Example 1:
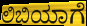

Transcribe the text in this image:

ಲಿಬಿಯಾಗೆ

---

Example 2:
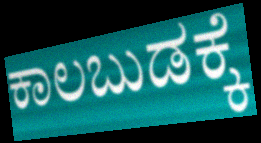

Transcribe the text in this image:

ಕಾಲಬುಡಕ್ಕೆ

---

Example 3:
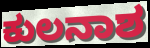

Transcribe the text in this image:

ಕುಲನಾಶ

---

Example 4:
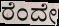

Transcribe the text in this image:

ರೆಂದೇ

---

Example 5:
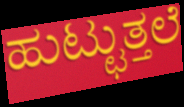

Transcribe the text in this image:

ಹುಟ್ಟುತ್ತಲೆ